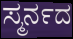
ಸ್ಮರ್ನದ